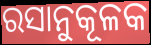
ରସାନୁକୂଳକ